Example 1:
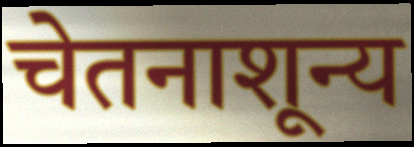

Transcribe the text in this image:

चेतनाशून्य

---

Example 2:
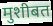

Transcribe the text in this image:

मुशीबत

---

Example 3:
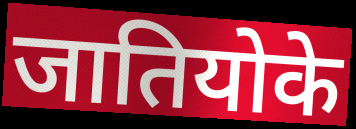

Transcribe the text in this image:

जातियोके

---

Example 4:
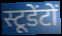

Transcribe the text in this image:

स्टूडेंटों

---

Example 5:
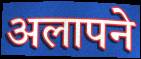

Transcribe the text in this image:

अलापने